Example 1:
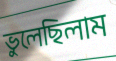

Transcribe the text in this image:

ভুলেছিলাম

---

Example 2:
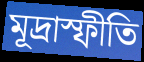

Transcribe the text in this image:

মূদ্রাস্ফীতি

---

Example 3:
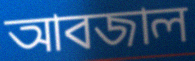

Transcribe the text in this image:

আবজাল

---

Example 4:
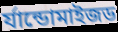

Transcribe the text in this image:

র্যান্ডোমাইজড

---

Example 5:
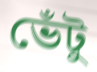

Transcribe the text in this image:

ভেঁটু